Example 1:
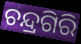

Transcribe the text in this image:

ଚନ୍ଦ୍ରଗିରି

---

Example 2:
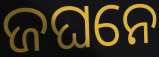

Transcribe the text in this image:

ଜଘନେ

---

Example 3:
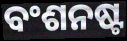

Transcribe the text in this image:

ବଂଶନଷ୍ଟ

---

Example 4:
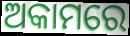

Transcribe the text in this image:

ଅକାମରେ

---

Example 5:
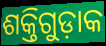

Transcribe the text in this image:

ଶକ୍ତିଗୁଡ଼ାକ